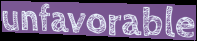
unfavorable